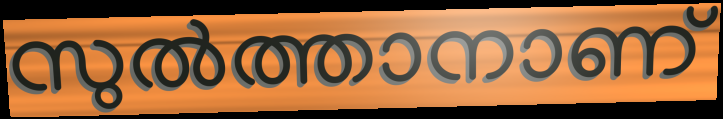
സുൽത്താനാണ്